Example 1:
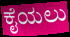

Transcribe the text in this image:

ಕೈಯಲು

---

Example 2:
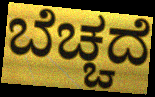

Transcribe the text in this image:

ಬೆಚ್ಚದೆ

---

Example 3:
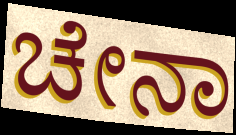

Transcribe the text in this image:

ಚೇನಾ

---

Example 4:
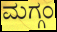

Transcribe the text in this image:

ಮಗ್ಗಂ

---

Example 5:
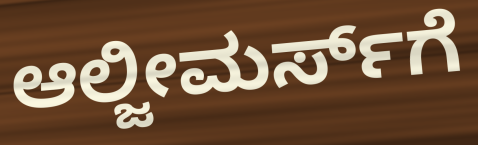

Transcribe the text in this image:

ಆಲ್ಜೀಮರ್ಸ್‌ಗೆ